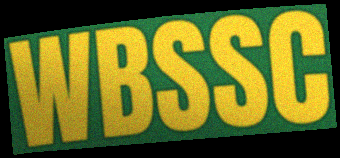
WBSSC